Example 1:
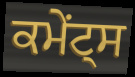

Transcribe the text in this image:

ਕਮੇਂਟ੍ਸ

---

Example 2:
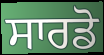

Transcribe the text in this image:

ਸਾਰਡੋ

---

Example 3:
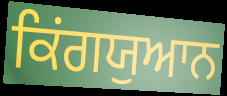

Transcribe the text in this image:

ਕਿਂਗਯੁਆਨ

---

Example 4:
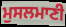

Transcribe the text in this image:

ਮੁਸਲਮਾਣੀ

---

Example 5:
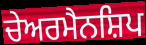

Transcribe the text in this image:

ਚੇਅਰਮੈਨਸ਼ਿਪ